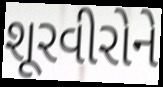
શૂરવીરોને